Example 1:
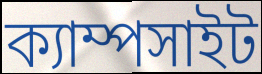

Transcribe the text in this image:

ক্যাম্পসাইট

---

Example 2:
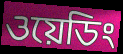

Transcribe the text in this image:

ওয়েডিং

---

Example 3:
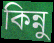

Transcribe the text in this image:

কিন্নু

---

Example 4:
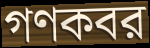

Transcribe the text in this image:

গণকবর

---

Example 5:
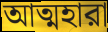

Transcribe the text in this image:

আত্মহারা